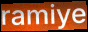
ramiye